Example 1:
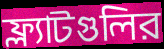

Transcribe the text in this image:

ফ্ল্যাটগুলির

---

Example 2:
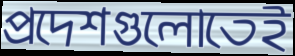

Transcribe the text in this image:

প্রদেশগুলোতেই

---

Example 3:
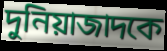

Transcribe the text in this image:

দুনিয়াজাদকে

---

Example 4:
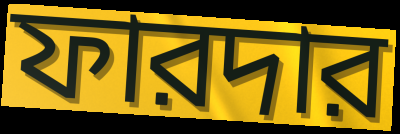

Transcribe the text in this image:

ফারদার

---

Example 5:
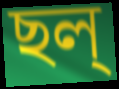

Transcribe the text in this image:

ছল্